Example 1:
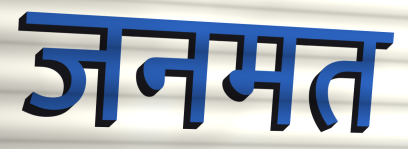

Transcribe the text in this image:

जनमत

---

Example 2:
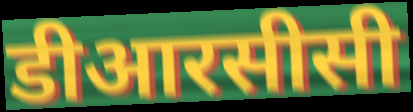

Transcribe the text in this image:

डीआरसीसी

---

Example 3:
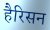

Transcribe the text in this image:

हैरिसन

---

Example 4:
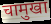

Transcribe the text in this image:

चामुखा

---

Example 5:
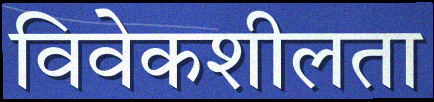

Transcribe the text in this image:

विवेकशीलता